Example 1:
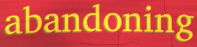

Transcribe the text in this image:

abandoning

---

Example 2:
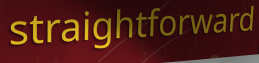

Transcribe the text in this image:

straightforward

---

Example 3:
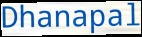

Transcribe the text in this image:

Dhanapal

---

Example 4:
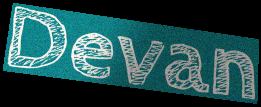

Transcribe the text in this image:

Devan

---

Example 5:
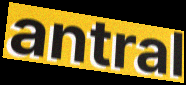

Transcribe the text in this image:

antral